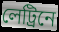
লেট্রিনে